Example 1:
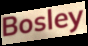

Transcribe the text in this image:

Bosley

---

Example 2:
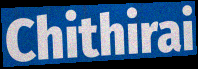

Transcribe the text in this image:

Chithirai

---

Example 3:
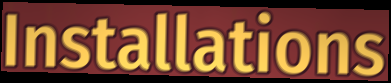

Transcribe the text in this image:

Installations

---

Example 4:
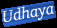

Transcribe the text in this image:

Udhaya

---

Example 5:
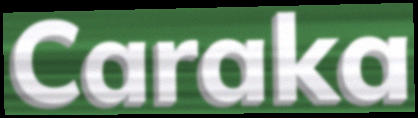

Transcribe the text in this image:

Caraka